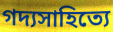
গদ্যসাহিত্যে